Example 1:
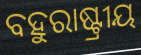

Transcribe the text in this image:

ବହୁରାଷ୍ଟ୍ରୀୟ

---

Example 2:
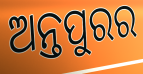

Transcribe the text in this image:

ଅନ୍ତପୁରର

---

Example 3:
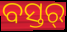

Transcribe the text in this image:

ବସ୍ତର୍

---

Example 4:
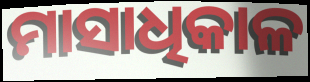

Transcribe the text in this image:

ମାସାଧିକାଳ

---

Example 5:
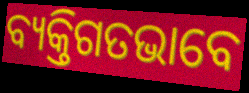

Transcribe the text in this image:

ବ୍ୟକ୍ତିଗତଭାବେ